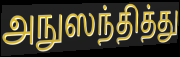
அநுஸந்தித்து